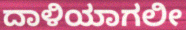
ದಾಳಿಯಾಗಲೀ